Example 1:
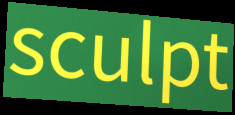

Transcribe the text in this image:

sculpt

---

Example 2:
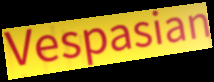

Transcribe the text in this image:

Vespasian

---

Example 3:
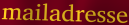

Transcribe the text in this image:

mailadresse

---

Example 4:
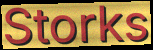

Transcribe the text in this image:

Storks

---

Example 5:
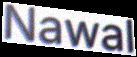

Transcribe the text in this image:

Nawal